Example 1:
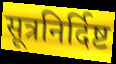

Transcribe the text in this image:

सूत्रनिर्दिष्ट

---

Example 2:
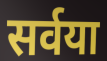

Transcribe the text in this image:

सर्वया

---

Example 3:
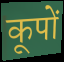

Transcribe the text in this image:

कूपों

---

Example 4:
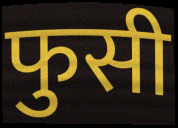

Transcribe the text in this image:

फुसी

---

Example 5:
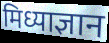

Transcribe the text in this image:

मिध्याज्ञान